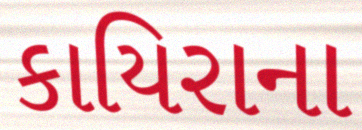
કાયિરાના